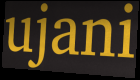
ujani